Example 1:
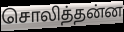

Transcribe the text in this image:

சொலித்தன்ன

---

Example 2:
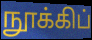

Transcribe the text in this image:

நூக்கிப்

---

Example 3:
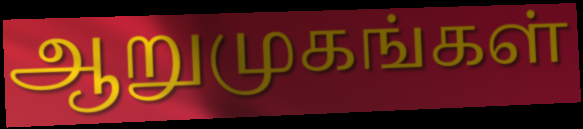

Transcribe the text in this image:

ஆறுமுகங்கள்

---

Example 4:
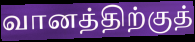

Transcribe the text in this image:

வானத்திற்குத்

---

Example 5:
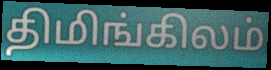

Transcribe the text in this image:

திமிங்கிலம்